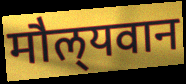
मौल्यवान